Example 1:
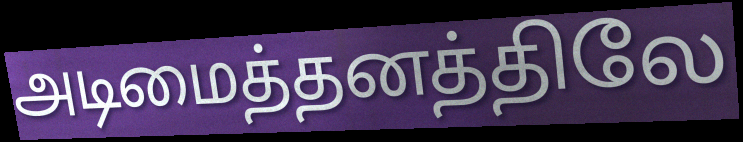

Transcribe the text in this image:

அடிமைத்தனத்திலே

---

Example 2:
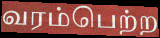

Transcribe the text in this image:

வரம்பெற்ற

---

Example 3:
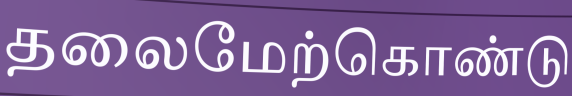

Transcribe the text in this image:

தலைமேற்கொண்டு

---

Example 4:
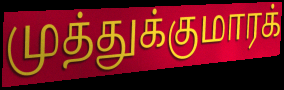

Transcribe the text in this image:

முத்துக்குமாரக்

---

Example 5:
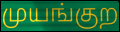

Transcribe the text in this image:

முயங்குற